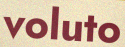
voluto